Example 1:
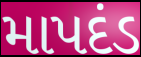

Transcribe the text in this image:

માપદંડ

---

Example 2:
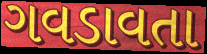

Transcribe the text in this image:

ગવડાવતા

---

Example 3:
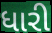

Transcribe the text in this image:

ધારી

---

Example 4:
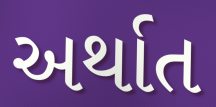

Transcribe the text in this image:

અર્થાત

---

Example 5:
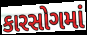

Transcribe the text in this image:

કારસોગમાં